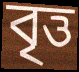
বৃত্ত